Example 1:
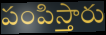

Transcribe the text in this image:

పంపిస్తారు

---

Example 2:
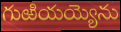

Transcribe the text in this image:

గుఱియయ్యెను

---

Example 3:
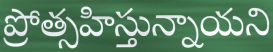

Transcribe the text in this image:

ప్రోత్సహిస్తున్నాయని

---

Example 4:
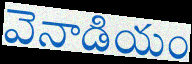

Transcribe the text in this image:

వెనాడియం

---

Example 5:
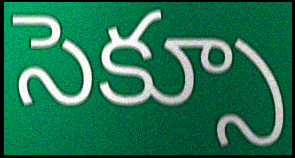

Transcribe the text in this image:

సెక్సూ